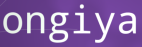
ongiya